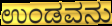
ಉಂಡವನು